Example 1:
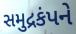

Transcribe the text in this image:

સમુદ્રકંપને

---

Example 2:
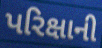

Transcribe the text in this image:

પરિક્ષાની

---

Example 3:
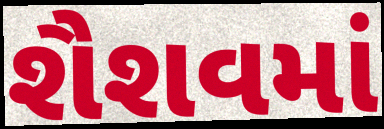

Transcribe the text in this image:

શૈશવમાં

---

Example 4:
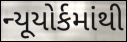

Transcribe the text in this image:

ન્યૂયોર્કમાંથી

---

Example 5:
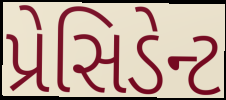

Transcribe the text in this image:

પ્રેસિડેન્ટ